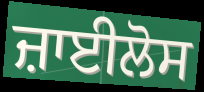
ਜ਼ਾਈਲੋਸ